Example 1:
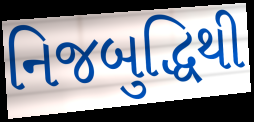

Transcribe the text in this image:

નિજબુદ્ધિથી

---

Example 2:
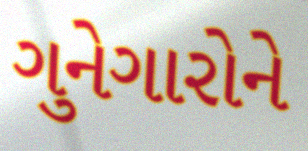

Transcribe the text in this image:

ગુનેગારોને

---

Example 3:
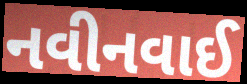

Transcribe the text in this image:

નવીનવાઈ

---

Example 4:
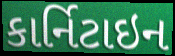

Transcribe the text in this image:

કાર્નિટાઇન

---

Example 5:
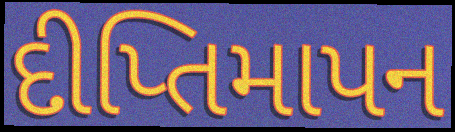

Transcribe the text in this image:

દીપ્તિમાપન